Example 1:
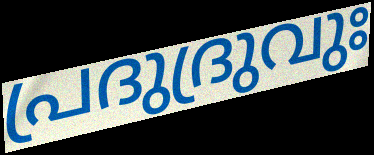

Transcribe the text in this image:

പ്രദുദ്രുവുഃ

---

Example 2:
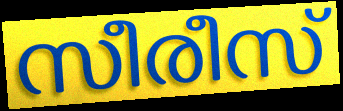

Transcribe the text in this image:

സീരീസ്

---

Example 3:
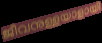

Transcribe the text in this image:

ജീവനുള്ളയാളായി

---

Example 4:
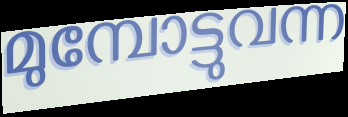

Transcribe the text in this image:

മുമ്പോട്ടുവന്ന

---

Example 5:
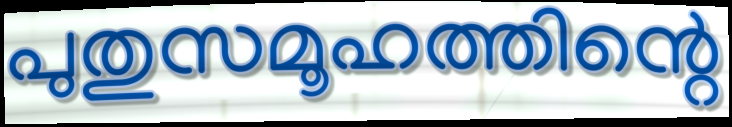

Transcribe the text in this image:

പുതുസമൂഹത്തിന്റെ